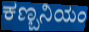
ಕಣ್ಬನಿಯಂ